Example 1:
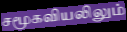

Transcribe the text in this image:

சமூகவியலிலும்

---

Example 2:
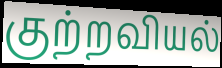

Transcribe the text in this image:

குற்றவியல்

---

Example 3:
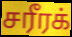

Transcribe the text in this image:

சரீரக்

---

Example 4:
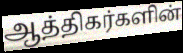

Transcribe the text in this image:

ஆத்திகர்களின்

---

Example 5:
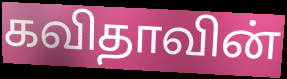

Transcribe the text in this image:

கவிதாவின்